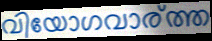
വിയോഗവാര്ത്ത